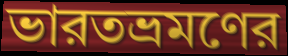
ভারতভ্রমণের